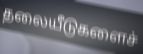
தலையீடுகளைச்